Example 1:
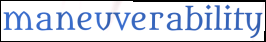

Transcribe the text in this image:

maneuverability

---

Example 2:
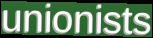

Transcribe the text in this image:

unionists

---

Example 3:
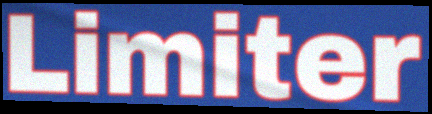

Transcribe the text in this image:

Limiter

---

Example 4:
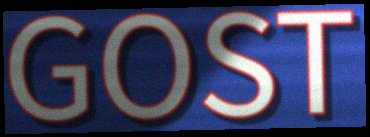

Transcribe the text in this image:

GOST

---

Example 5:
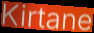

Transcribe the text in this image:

Kirtane